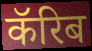
कॅरिब